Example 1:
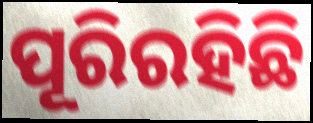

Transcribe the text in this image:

ପୂରିରହିଛି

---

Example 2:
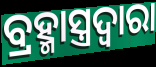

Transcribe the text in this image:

ବ୍ରହ୍ମାସ୍ତ୍ରଦ୍ୱାରା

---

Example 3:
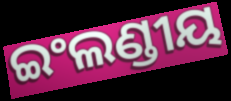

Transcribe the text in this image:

ଇଂଲଣ୍ଡୀୟ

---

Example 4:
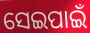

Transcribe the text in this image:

ସେଇପାଇଁ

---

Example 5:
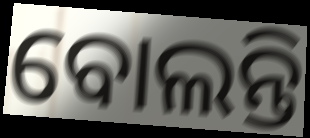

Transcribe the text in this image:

ବୋଲନ୍ତି